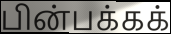
பின்பக்கக்